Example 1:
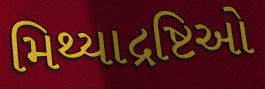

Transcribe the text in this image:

મિથ્યાદ્રષ્ટિઓ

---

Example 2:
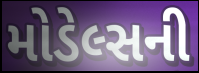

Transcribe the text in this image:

મોડેલ્સની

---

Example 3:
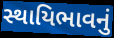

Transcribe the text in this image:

સ્થાયિભાવનું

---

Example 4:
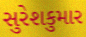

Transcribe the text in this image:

સુરેશકુમાર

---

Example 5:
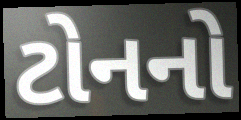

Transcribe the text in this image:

ટોનનો